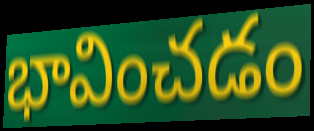
భావించడం